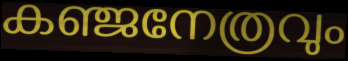
കഞ്ജനേത്രവും